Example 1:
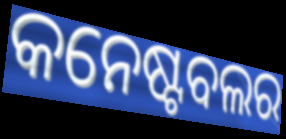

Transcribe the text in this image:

କନେଷ୍ଟବଲର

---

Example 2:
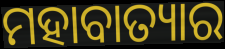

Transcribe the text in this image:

ମହାବାତ୍ୟାର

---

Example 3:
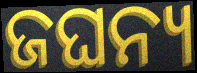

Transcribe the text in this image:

ଜଘନ୍ଯ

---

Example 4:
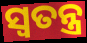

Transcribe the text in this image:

ସ୍ୱତନ୍ତ୍ର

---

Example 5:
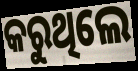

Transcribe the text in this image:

କରୁଥିଲେ